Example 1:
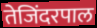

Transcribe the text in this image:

तेजिंदरपाल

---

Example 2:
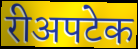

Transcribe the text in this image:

रीअपटेक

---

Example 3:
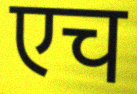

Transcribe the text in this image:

एच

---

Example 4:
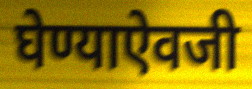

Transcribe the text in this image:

घेण्याऐवजी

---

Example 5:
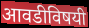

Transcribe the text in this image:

आवडीविषयी